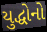
યુદ્ધોનો